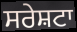
ਸਰੇਸ਼ਟਾ